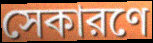
সেকারণে